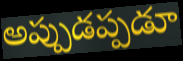
అప్పుడప్పడూ